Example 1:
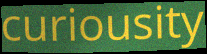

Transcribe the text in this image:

curiousity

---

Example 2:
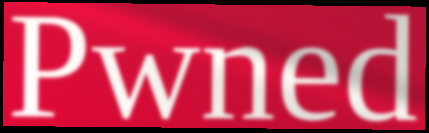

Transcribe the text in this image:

Pwned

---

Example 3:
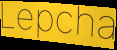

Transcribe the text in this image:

Lepcha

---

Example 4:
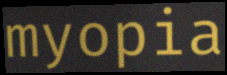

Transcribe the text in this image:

myopia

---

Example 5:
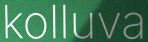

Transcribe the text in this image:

kolluva